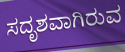
ಸದೃಶವಾಗಿರುವ